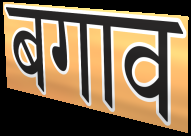
बगाव